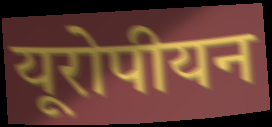
यूरोपीयन